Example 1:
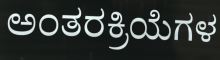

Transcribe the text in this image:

ಅಂತರಕ್ರಿಯೆಗಳ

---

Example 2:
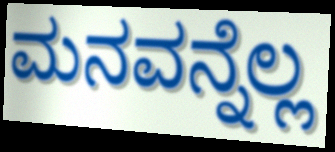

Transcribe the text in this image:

ಮನವನ್ನೆಲ್ಲ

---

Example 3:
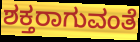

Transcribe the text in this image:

ಶಕ್ತರಾಗುವಂತೆ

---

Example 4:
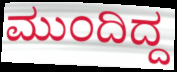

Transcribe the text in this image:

ಮುಂದಿದ್ದ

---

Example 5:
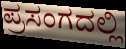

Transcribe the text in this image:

ಪ್ರಸಂಗದಲ್ಲಿ